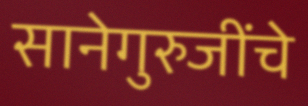
सानेगुरुजींचे